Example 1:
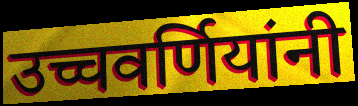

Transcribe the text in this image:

उच्चवर्णियांनी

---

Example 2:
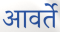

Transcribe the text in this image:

आवर्ते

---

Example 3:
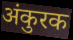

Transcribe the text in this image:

अंकुरक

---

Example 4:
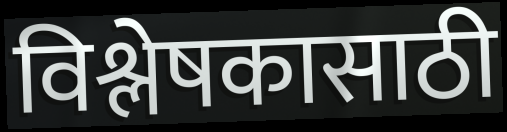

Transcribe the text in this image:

विश्लेषकासाठी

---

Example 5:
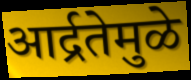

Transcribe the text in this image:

आर्द्रतेमुळे